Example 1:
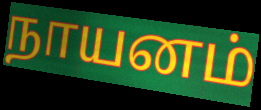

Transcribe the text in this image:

நாயனம்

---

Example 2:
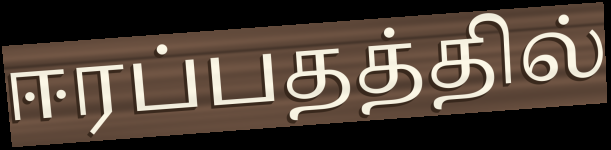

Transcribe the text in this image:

ஈரப்பதத்தில்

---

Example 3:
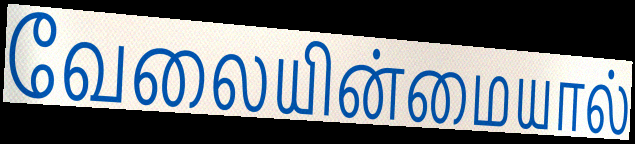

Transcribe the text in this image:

வேலையின்மையால்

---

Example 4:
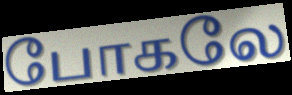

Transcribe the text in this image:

போகலே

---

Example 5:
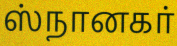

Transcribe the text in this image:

ஸ்நானகர்